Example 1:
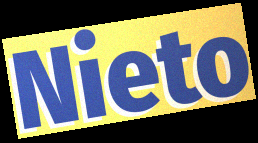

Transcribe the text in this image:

Nieto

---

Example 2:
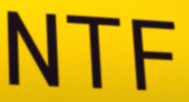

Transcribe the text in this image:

NTF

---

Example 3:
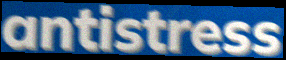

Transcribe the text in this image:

antistress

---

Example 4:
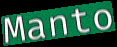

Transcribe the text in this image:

Manto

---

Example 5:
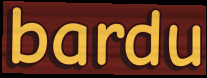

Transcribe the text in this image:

bardu